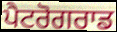
ਪੈਟਰੋਗਰਾਡ